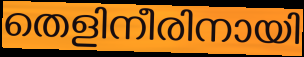
തെളിനീരിനായി